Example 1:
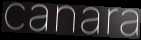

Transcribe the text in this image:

canara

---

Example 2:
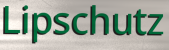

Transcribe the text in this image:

Lipschutz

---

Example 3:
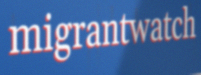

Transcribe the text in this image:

migrantwatch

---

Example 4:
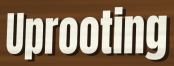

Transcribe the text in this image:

Uprooting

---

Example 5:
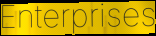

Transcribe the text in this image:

Enterprises